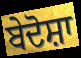
ਬੇਦੋਸ਼ਾ